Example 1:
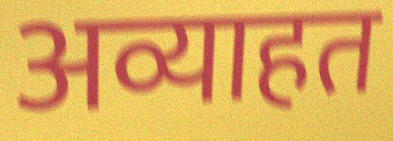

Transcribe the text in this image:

अव्याहत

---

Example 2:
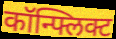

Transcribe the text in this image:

कॉन्फ्लिक्ट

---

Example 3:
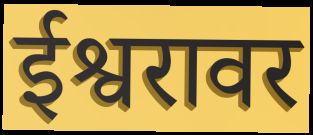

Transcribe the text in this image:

ईश्वरावर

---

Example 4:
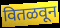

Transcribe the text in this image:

वितळवून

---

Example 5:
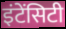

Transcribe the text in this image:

इंटेंसिटी